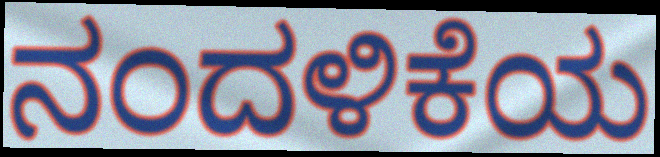
ನಂದಳಿಕೆಯ